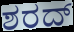
ಶರದ್